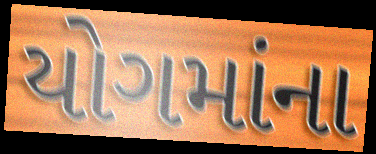
યોગમાંના